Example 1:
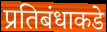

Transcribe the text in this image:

प्रतिबंधाकडे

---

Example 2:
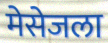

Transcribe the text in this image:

मेसेजला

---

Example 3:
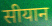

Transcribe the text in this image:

सीयान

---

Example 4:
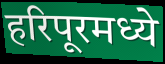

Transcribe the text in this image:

हरिपूरमध्ये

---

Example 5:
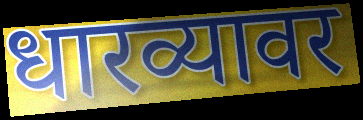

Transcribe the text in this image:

धारव्यावर